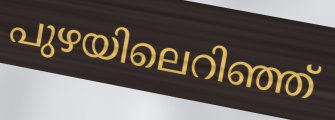
പുഴയിലെറിഞ്ഞ്